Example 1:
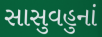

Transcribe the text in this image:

સાસુવહુનાં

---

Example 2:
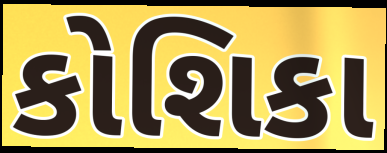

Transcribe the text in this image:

કોશિકા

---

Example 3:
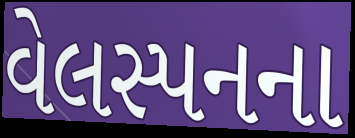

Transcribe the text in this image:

વેલસ્પનના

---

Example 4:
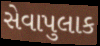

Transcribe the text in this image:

સેવાપુલાક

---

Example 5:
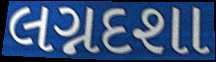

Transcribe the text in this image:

લગ્નદશા